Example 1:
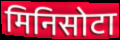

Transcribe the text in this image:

मिनिसोटा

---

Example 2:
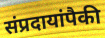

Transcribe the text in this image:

संप्रदायांपैकी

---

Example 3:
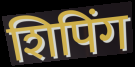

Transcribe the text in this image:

शिपिंग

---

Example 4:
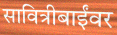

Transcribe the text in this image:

सावित्रीबाईंवर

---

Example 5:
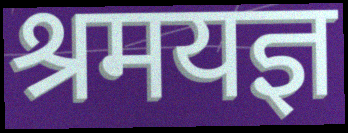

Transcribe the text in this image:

श्रमयज्ञ